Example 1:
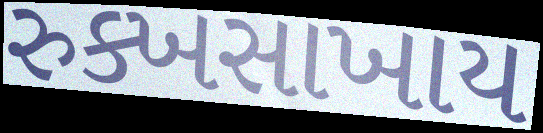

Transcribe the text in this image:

રુક્ખસાખાય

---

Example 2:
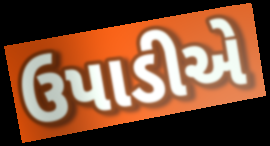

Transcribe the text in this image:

ઉપાડીએ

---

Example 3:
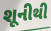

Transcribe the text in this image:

શૂનીથી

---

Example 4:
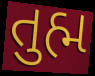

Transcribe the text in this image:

તુહ્મ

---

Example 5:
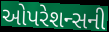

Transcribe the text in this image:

ઓપરેશન્સની